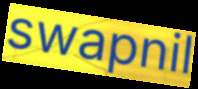
swapnil